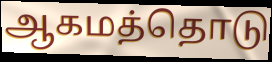
ஆகமத்தொடு